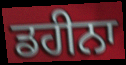
ਡਹੀਨਾ